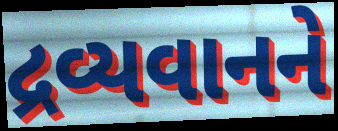
દ્રવ્યવાનને